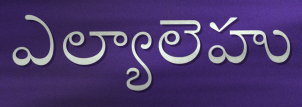
ఎల్యాలెహు